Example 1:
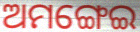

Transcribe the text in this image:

ଅମଙ୍ଗେଇ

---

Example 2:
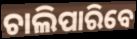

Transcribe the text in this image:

ଚାଲିପାରିବେ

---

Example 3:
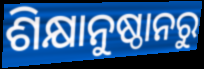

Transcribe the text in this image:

ଶିକ୍ଷାନୁଷ୍ଠାନରୁ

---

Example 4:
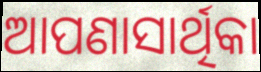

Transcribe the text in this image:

ଆପଣାସାର୍ଥିକା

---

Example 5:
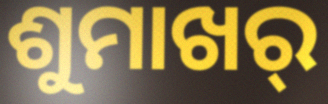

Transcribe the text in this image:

ଶୁମାଖର୍